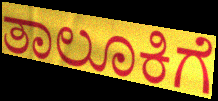
ತಾಲೂಕಿಗೆ